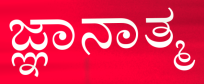
ಜ್ಞಾನಾತ್ಮ